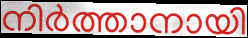
നിർത്താനായി